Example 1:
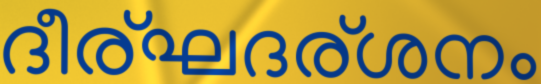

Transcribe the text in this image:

ദീര്ഘദര്ശനം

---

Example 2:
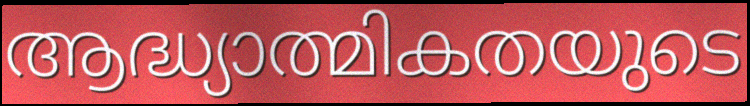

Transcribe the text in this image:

ആദ്ധ്യാത്മികതയുടെ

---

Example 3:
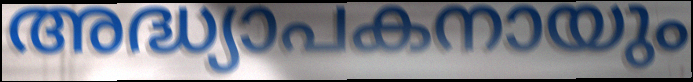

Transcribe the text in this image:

അദ്ധ്യാപകനായും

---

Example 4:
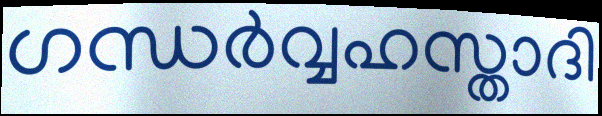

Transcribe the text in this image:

ഗന്ധർവ്വഹസ്താദി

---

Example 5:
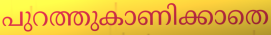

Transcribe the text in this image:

പുറത്തുകാണിക്കാതെ